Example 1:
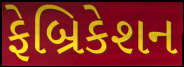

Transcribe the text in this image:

ફેબ્રિકેશન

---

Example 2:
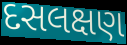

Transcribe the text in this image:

દસલક્ષણ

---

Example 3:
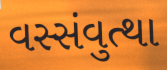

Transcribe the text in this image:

વસ્સંવુત્થા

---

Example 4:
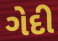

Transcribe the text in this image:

ગેદી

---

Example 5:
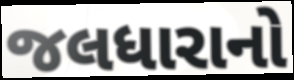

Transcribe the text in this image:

જલધારાનો